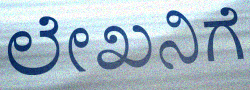
ಲೇಖನಿಗೆ